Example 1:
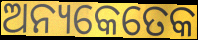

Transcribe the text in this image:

ଅନ୍ୟକେତେକ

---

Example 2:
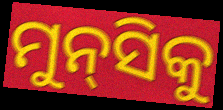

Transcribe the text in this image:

ମୁନ୍‌ସିକୁ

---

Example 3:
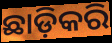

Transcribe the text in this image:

ଛାଡ଼ିକରି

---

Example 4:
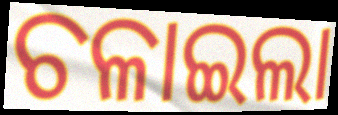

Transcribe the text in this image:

ଚଳାଇଲା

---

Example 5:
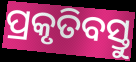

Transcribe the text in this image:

ପ୍ରକୃତିବସ୍ତୁ